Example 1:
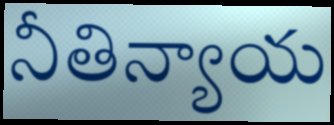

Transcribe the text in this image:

నీతిన్యాయ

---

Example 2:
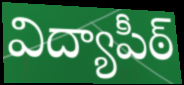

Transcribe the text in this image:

విద్యాపీఠ్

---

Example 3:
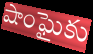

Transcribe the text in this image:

షాంఘైకు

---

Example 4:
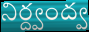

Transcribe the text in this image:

నిర్ద్వంద్వ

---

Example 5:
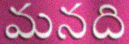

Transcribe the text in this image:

మనది